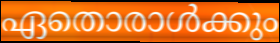
ഏതൊരാൾക്കും